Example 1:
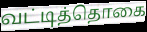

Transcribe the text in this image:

வட்டித்தொகை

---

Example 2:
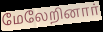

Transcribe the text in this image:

மேலேறினார்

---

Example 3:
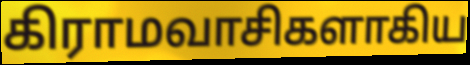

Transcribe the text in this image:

கிராமவாசிகளாகிய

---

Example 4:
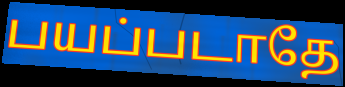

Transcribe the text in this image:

பயப்படாதே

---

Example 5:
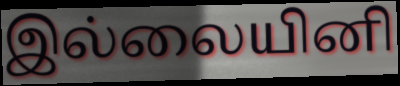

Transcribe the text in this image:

இல்லையினி